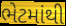
ભેટમાંથી